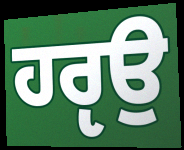
ਹਰੵਉ